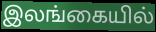
இலங்கையில்